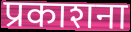
प्रकाशना